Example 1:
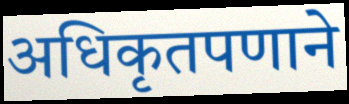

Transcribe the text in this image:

अधिकृतपणाने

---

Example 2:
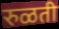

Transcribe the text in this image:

रुळती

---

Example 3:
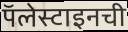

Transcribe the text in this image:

पॅलेस्टाइनची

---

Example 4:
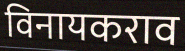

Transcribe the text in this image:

विनायकराव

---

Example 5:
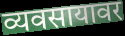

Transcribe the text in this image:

व्यवसायावर